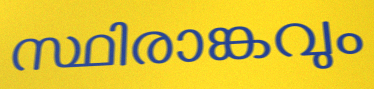
സ്ഥിരാങ്കവും